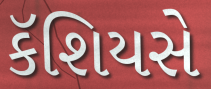
કૅશિયસે